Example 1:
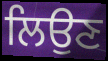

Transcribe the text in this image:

ਲਿਉਣ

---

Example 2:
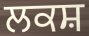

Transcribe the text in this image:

ਲਕਸ਼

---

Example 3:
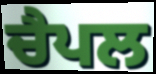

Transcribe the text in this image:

ਚੈਪਲ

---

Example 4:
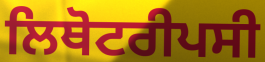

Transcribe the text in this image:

ਲਿਥੋਟਰੀਪਸੀ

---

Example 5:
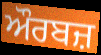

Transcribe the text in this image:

ਔਰਬਜ਼